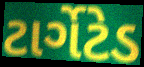
ટાર્ગેટેડ